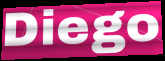
Diego